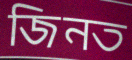
জিনত